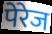
पेरेज